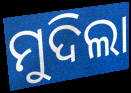
ମୁଦିଲା